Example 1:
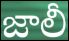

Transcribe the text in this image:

జాలీ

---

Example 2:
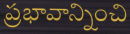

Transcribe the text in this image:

ప్రభావాన్నించి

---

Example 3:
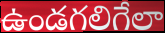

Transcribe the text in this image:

ఉండగలిగేలా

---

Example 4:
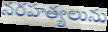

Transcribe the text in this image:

నరహత్యలును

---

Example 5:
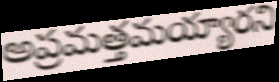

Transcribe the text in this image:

అప్రమత్తమయ్యారని